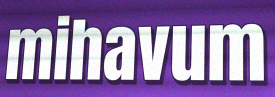
mihavum